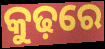
କୁଢ଼ରେ